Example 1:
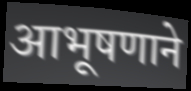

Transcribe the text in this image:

आभूषणाने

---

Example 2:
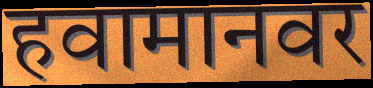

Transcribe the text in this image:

हवामानवर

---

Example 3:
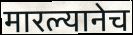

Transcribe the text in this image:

मारल्यानेच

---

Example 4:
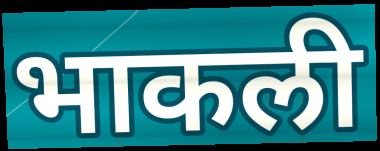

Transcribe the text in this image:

भाकली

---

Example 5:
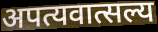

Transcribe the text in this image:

अपत्यवात्सल्य